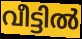
വീട്ടിൽ